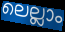
ലെല്ലാം